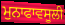
ਮੁਨਾਫਾਵਸੂਲੀ